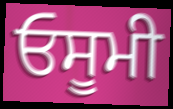
ਓਸੂਮੀ